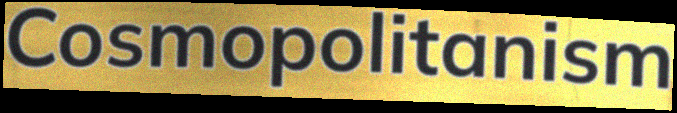
Cosmopolitanism